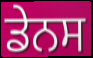
ਡੇਨਸ